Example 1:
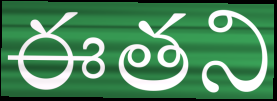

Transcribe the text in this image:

ఈతని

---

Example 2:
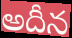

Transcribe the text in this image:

అదీన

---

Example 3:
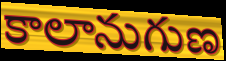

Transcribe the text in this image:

కాలానుగుణ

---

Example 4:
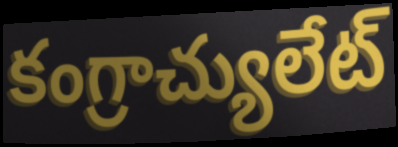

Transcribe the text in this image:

కంగ్రాచ్యులేట్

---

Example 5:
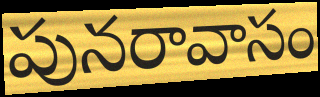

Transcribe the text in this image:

పునరావాసం